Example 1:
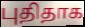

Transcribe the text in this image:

புதிதாக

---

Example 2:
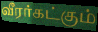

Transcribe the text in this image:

வீரர்கட்கும்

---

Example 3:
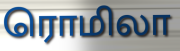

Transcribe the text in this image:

ரொமிலா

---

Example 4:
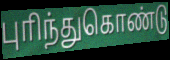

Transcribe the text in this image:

புரிந்துகொண்டு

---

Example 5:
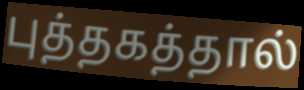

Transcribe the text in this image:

புத்தகத்தால்